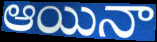
ఆయినా